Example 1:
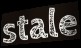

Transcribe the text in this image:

stale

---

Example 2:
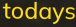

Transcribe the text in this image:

todays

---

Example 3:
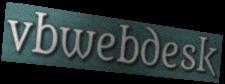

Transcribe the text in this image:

vbwebdesk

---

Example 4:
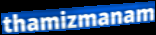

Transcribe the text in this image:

thamizmanam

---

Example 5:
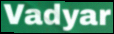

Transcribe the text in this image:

Vadyar